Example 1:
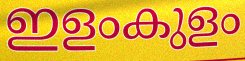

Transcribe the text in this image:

ഇളംകുളം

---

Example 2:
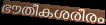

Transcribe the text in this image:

ഭൗതീകശരീരം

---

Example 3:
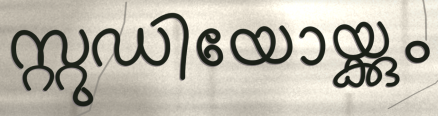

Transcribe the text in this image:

സ്റ്റുഡിയോയ്ക്കും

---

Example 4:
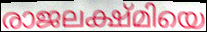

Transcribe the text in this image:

രാജലക്ഷ്മിയെ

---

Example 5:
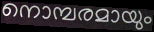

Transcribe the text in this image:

നൊമ്പരമായും